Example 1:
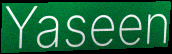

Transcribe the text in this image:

Yaseen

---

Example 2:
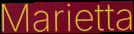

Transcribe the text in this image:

Marietta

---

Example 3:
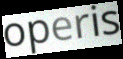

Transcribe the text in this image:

operis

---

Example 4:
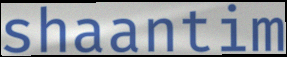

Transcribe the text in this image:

shaantim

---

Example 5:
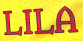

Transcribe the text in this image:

LILA